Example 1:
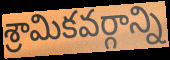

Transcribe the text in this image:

శ్రామికవర్గాన్ని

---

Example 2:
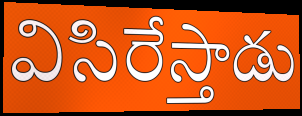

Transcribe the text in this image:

విసిరేస్తాడు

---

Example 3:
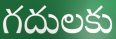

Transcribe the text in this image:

గదులకు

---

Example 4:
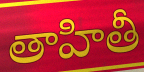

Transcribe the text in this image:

తాహితీ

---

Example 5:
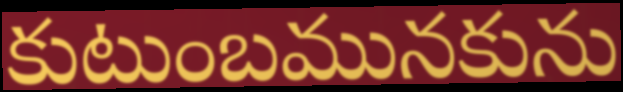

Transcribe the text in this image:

కుటుంబమునకును